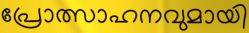
പ്രോത്സാഹനവുമായി